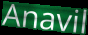
Anavil